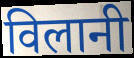
विलानी